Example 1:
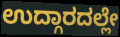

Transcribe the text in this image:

ಉದ್ಗಾರದಲ್ಲೇ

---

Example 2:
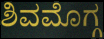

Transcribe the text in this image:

ಶಿವಮೊಗ್ಗ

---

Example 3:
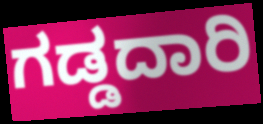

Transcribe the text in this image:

ಗಡ್ಡದಾರಿ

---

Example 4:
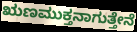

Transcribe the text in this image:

ಋಣಮುಕ್ತನಾಗುತ್ತೇನೆ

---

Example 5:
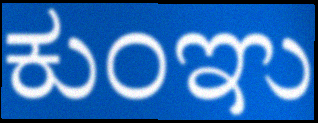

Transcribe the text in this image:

ಕುಂಞು